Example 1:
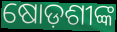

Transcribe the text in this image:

ଷୋଡ଼ଶୀଙ୍କ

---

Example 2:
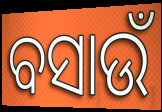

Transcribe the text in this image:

ବସାଉଁ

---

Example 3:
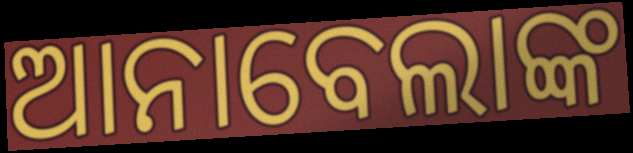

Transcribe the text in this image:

ଆନାବେଲାଙ୍କ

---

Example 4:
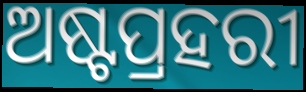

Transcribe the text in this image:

ଅଷ୍ଟପ୍ରହରୀ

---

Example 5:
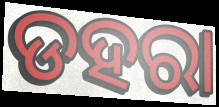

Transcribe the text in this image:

ଡହରା